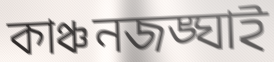
কাঞ্চনজঙ্ঘাই